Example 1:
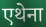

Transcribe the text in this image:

एथेना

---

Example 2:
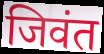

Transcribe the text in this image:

जिवंत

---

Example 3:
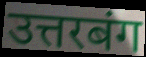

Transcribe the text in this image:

उत्तरबंग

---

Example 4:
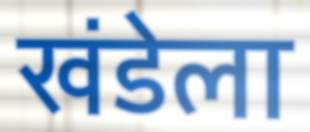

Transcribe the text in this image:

खंडेला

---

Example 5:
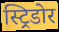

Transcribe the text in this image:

स्ट्रिडोर